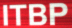
ITBP